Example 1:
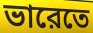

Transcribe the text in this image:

ভারেতে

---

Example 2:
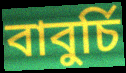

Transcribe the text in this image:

বাবুর্চি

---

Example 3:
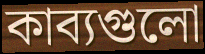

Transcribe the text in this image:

কাব্যগুলো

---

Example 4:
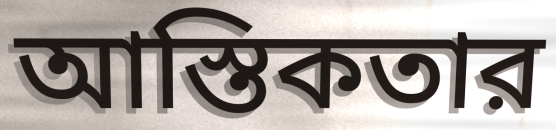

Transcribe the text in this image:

আস্তিকতার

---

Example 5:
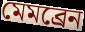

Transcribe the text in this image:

মেমব্রেন